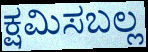
ಕ್ಷಮಿಸಬಲ್ಲ